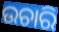
ଉଚାରି